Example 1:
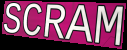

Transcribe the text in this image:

SCRAM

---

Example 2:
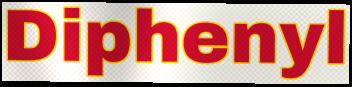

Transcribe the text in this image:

Diphenyl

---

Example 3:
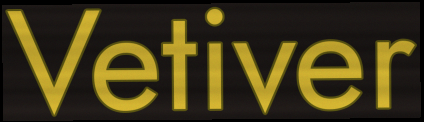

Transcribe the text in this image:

Vetiver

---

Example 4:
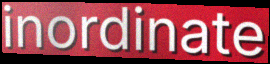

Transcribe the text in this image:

inordinate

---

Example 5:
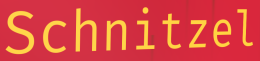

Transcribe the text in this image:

Schnitzel